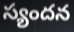
స్యందన